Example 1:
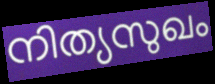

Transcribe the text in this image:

നിത്യസുഖം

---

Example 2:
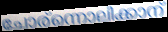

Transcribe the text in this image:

ചോര്ന്നൊലിക്കാന്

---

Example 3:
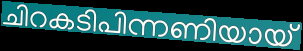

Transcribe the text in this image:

ചിറകടിപിന്നണിയായ്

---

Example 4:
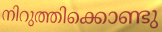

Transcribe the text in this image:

നിറുത്തിക്കൊണ്ടു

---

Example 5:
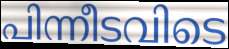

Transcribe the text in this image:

പിന്നീടവിടെ